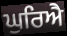
ਘੁਰਿਐ